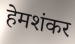
हेमशंकर